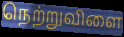
நெற்றுவிளை